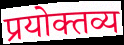
प्रयोक्तव्य